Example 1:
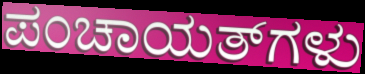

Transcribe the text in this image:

ಪಂಚಾಯತ್‌ಗಳು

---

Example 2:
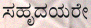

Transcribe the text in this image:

ಸಹೃದಯರೇ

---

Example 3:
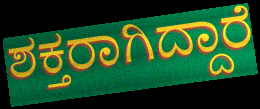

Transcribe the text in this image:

ಶಕ್ತರಾಗಿದ್ದಾರೆ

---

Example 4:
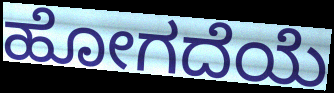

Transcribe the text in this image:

ಹೋಗದೆಯೆ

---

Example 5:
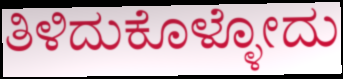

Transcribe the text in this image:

ತಿಳಿದುಕೊಳ್ಳೋದು